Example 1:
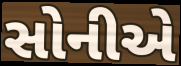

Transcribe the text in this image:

સોનીએ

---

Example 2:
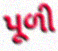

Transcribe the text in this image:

પૂળી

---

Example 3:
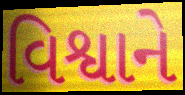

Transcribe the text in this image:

વિશ્વાને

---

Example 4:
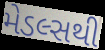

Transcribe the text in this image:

મેડલ્સથી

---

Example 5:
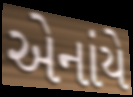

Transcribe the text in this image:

એનાંયે